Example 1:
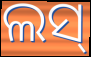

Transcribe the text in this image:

ଲସ୍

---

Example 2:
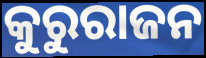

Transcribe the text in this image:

କୁରୁରାଜନ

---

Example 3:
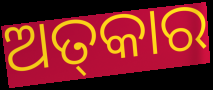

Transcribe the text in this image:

ଅତ୍‌କାର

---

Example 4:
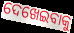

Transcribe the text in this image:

ଦେଖେଇବାକୁ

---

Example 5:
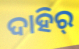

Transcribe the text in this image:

ଦାହିର୍